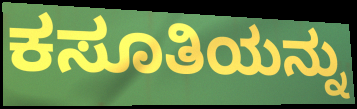
ಕಸೂತಿಯನ್ನು